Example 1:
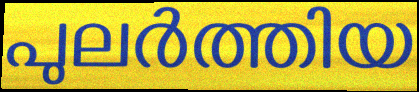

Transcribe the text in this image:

പുലർത്തിയ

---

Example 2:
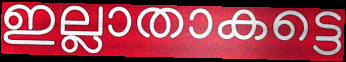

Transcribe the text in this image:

ഇല്ലാതാകട്ടെ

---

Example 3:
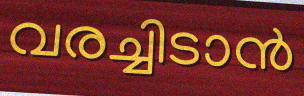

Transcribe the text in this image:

വരച്ചിടാൻ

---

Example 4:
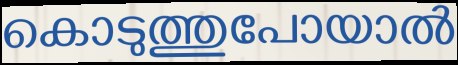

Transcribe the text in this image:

കൊടുത്തുപോയാൽ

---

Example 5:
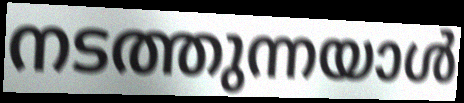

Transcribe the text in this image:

നടത്തുന്നയാൾ